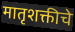
मातृशक्तीचे